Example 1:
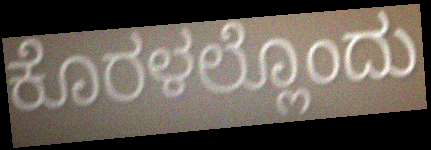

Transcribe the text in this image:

ಕೊರಳಲ್ಲೊಂದು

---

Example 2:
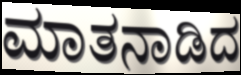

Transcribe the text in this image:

ಮಾತನಾಡಿದ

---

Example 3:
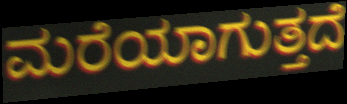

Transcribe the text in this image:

ಮರೆಯಾಗುತ್ತದೆ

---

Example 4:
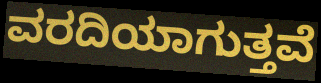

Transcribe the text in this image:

ವರದಿಯಾಗುತ್ತವೆ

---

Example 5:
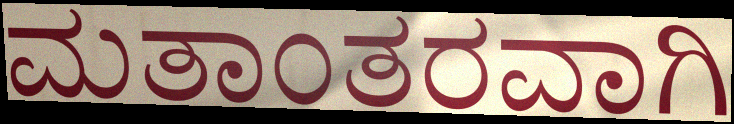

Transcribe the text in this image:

ಮತಾಂತರವಾಗಿ